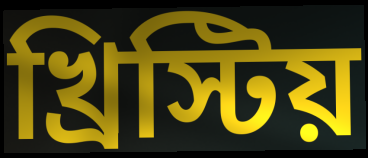
খ্রিস্টিয়